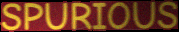
SPURIOUS